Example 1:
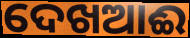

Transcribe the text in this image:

ଦେଖଆଈ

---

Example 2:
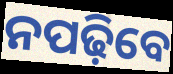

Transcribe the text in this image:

ନପଢ଼ିବେ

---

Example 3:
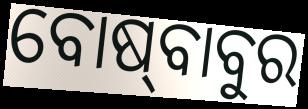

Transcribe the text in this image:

ବୋଷ୍‍ବାବୁର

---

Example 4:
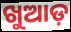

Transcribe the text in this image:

ଖୁଆଡ଼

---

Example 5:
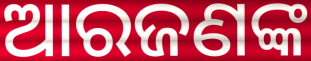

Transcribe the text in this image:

ଆରଜଣଙ୍କ